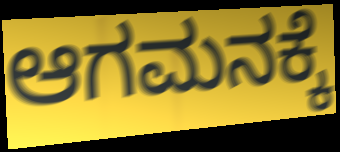
ಆಗಮನಕ್ಕೆ